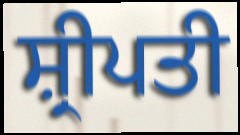
ਸ਼੍ਰੀਪਤੀ